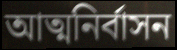
আত্মনির্বাসন